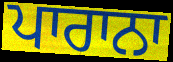
ਪਾਰਾਨਾ